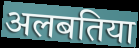
अलबतिया